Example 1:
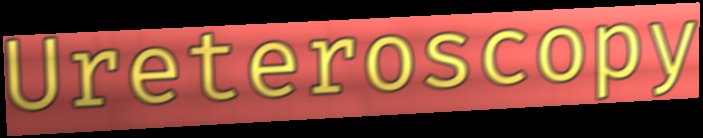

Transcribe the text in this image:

Ureteroscopy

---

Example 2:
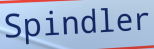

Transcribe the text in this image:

Spindler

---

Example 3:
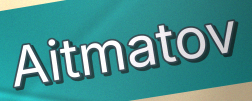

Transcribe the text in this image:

Aitmatov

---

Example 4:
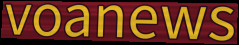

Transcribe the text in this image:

voanews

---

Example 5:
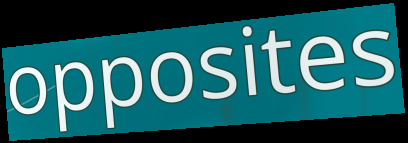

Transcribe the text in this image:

opposites